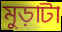
মুড়াটা